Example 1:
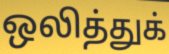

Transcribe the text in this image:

ஒலித்துக்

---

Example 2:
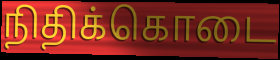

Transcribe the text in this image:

நிதிக்கொடை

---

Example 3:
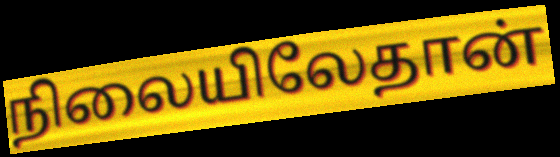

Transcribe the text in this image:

நிலையிலேதான்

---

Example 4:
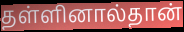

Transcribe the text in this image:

தள்ளினால்தான்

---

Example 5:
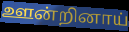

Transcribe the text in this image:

ஊன்றினாய்